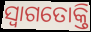
ସ୍ଵାଗତୋକ୍ତି